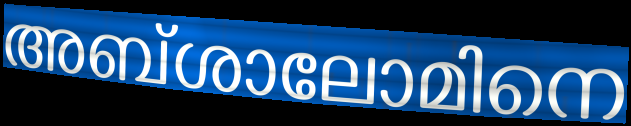
അബ്ശാലോമിനെ